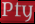
Pty